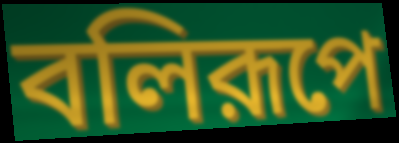
বলিরূপে